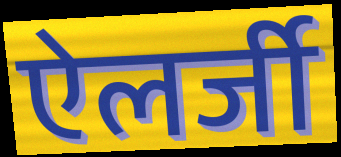
ऐलर्जी